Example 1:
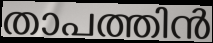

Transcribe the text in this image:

താപത്തിൻ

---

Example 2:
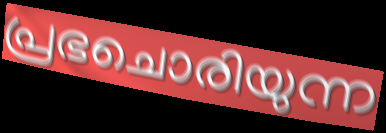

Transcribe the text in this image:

പ്രഭചൊരിയുന്ന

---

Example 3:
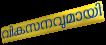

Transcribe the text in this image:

വികസനവുമായി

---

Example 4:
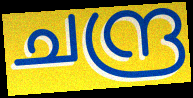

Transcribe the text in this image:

ചന്ദ്ര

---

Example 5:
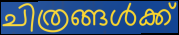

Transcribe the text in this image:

ചിത്രങ്ങൾക്ക്